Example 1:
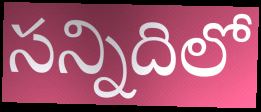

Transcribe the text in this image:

సన్నిదిలో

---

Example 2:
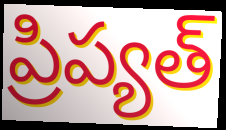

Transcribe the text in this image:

ప్రిప్యత్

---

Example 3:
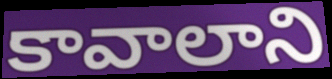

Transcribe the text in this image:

కావాలాని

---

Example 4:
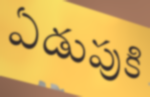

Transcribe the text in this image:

ఏడుపుకి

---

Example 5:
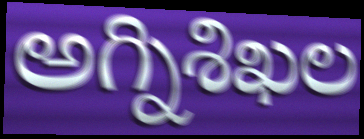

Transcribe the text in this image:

అగ్నిశిఖల